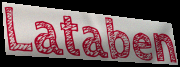
Lataben